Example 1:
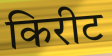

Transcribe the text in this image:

किरीट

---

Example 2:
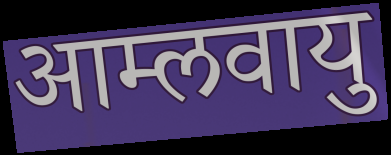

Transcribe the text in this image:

आम्लवायु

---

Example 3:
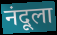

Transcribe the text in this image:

नंदूला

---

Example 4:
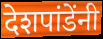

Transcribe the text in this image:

देशपांडेंनी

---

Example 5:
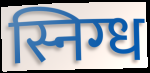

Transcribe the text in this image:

स्निग्ध